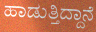
ಹಾಡುತ್ತಿದ್ದಾನೆ